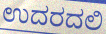
ಉದರದಲಿ